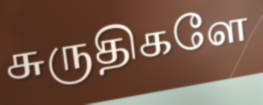
சுருதிகளே